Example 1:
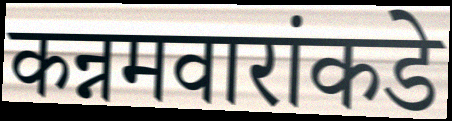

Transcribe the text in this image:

कन्नमवारांकडे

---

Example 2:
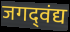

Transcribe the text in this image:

जगद्‌वंद्य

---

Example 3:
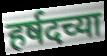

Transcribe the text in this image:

हर्षदच्या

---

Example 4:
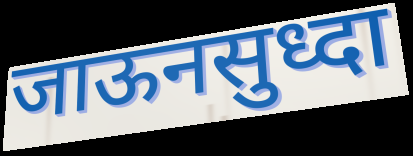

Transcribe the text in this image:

जाऊनसुध्दा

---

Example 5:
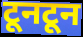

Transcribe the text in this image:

टूनटून